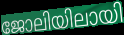
ജോലിയിലായി